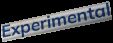
Experimental